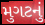
મુગટનું